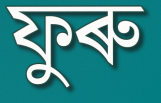
ফুৰু